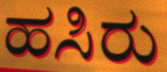
ಹಸಿರು